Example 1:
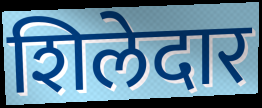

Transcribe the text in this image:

शिलेदार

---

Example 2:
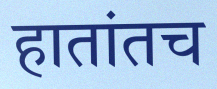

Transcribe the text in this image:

हातांतच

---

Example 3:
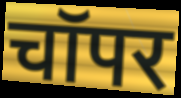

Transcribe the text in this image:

चॉपर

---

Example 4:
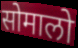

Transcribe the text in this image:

सोमालो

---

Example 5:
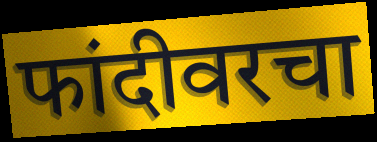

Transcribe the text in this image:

फांदीवरचा